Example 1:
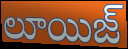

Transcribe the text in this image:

లూయిజ్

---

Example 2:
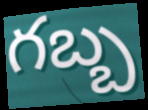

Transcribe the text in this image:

గబ్బ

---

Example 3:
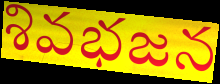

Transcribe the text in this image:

శివభజన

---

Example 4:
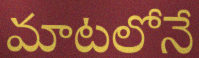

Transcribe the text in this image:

మాటలోనే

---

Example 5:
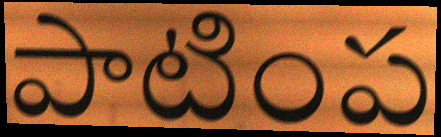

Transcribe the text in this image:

పాటింప